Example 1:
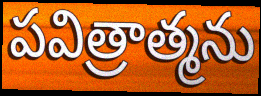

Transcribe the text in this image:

పవిత్రాత్మను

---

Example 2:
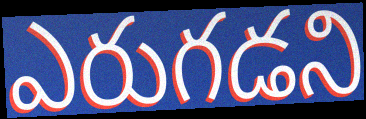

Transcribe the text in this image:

ఎరుగడని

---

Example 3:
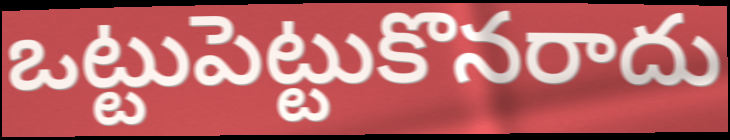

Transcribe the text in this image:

ఒట్టుపెట్టుకొనరాదు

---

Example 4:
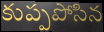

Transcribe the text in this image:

కుప్పపోసిన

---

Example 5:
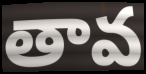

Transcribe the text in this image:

తావ